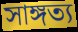
সাঙ্গত্য